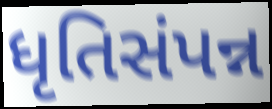
ધૃતિસંપન્ન